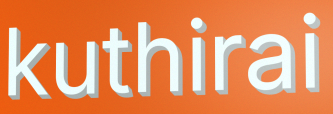
kuthirai